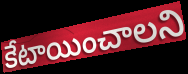
కేటాయించాలని